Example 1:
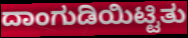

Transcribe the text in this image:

ದಾಂಗುಡಿಯಿಟ್ಟಿತು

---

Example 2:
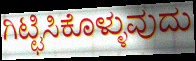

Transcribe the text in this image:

ಗಿಟ್ಟಿಸಿಕೊಳ್ಳುವುದು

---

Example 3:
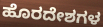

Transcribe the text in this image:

ಹೊರದೇಶಗಳ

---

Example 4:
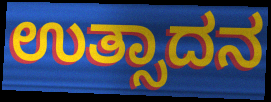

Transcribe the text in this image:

ಉತ್ಸಾದನ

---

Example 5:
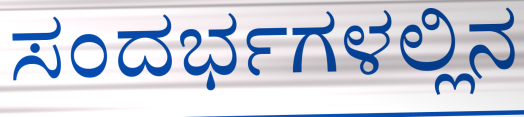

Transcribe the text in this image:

ಸಂದರ್ಭಗಳಲ್ಲಿನ